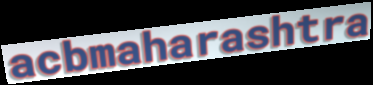
acbmaharashtra